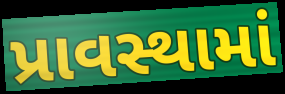
પ્રાવસ્થામાં